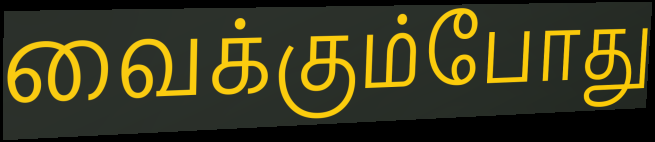
வைக்கும்போது